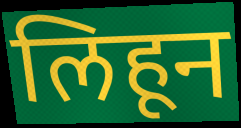
लिहून